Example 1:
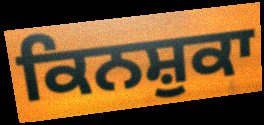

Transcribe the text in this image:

ਕਿਨਸ਼ੁਕਾ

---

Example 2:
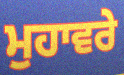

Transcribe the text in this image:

ਮੁਹਾਵਰੇ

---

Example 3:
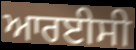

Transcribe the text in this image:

ਆਰਈਸੀ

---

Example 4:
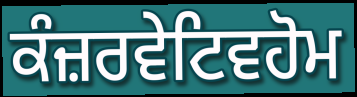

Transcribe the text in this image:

ਕੰਜ਼ਰਵੇਟਿਵਹੋਮ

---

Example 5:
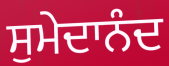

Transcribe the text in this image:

ਸੁਮੇਦਾਨੰਦ